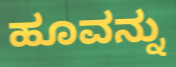
ಹೂವನ್ನು